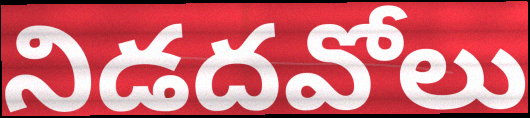
నిడదవోలు